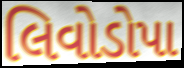
લિવોડોપા